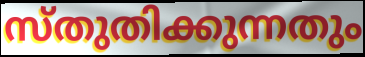
സ്തുതിക്കുന്നതും